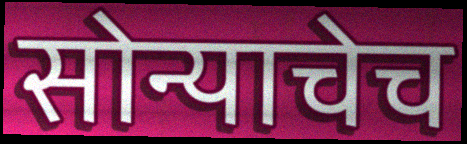
सोन्याचेच